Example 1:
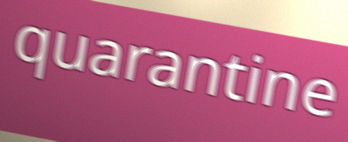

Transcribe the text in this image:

quarantine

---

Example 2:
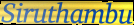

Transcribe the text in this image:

Siruthambu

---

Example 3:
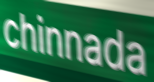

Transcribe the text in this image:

chinnada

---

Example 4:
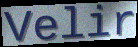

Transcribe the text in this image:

Velir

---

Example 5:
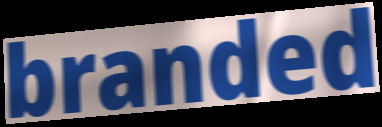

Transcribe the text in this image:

branded